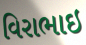
વિરાભાઇ